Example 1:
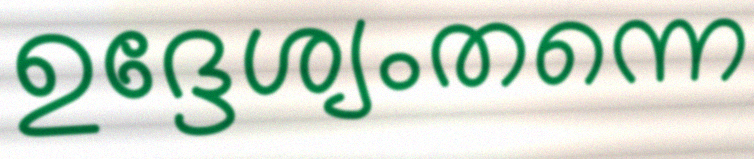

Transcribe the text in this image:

ഉദ്ദേശ്യംതന്നെ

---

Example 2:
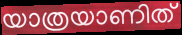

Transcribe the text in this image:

യാത്രയാണിത്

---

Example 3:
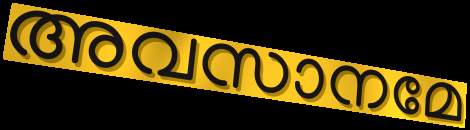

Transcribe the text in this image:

അവസാനമേ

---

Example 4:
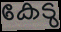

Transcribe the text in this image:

കേടു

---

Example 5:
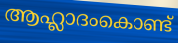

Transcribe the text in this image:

ആഹ്ലാദംകൊണ്ട്